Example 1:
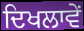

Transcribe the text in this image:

ਦਿਖਲਾਵੇਂ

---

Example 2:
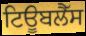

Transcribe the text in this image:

ਟਿਊਬਲੈੱਸ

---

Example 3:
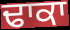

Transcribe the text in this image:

ਢਾਕਾ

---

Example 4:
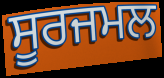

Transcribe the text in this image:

ਸੂਰਜਮਲ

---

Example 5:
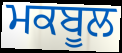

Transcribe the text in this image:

ਮਕਬੂਲ